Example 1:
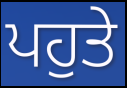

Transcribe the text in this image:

ਪਹੁਤੇ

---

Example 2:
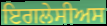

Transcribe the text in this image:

ਇਗਲੇਸੀਅਸ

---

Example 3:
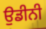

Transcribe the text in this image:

ਉਡੀਨੀ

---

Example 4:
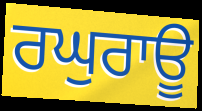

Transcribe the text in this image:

ਰਘੁਰਾਊ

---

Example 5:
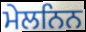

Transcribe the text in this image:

ਮੇਲਨਿਨ